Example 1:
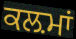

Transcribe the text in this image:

ਕਲ਼ਮਾਂ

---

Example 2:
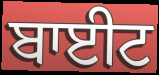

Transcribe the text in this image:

ਬਾਈਟ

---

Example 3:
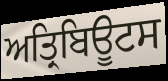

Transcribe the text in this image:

ਅਤ੍ਰਿਬਿਊਟਸ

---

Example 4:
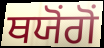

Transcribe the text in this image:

ਥਯੋਂਗੋਂ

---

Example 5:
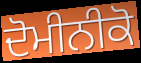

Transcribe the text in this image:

ਦੋਮੀਨੀਕੋ